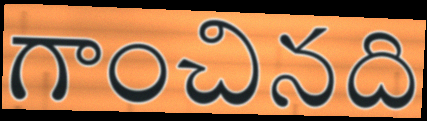
గాంచినది